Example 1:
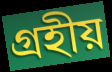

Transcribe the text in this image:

গ্রহীয়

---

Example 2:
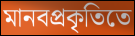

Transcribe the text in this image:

মানবপ্রকৃতিতে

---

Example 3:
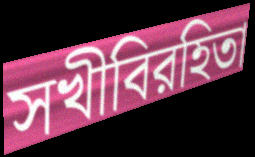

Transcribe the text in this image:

সখীবিরহিতা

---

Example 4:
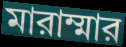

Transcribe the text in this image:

মারাম্মার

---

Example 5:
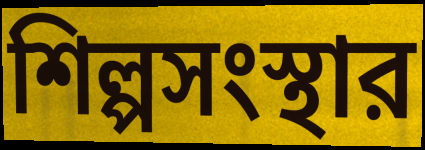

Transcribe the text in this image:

শিল্পসংস্থার